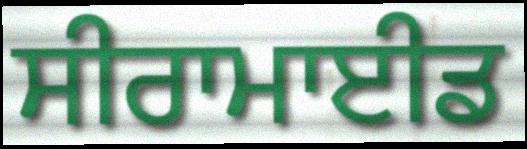
ਸੀਰਾਮਾਈਡ